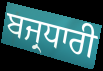
ਬਜ੍ਰਧਾਰੀ